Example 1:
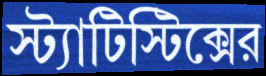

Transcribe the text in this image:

স্ট্যাটিস্টিক্সের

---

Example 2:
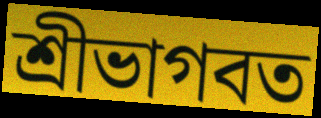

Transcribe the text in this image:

শ্রীভাগবত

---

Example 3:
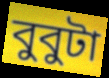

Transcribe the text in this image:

বুবুটা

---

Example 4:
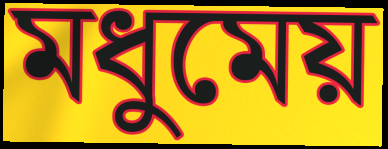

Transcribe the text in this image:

মধুমেয়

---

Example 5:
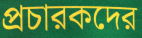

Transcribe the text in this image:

প্রচারকদের